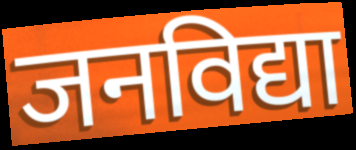
जनविद्या